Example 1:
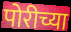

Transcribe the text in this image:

पोरीच्या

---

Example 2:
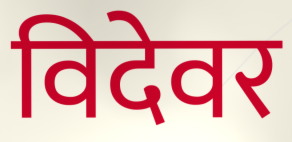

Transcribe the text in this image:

विदेवर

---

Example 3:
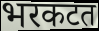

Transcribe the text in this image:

भरकटत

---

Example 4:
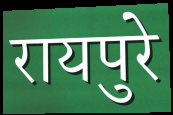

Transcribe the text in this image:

रायपुरे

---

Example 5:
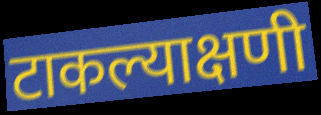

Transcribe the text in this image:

टाकल्याक्षणी